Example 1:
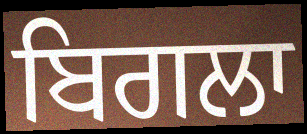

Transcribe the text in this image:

ਬਿਗਲਾ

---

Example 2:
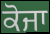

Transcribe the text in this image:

ਕੋਜਾ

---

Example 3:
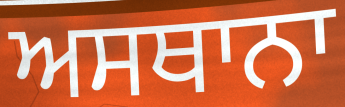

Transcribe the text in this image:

ਅਸਥਾਨਾ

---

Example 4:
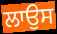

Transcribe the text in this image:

ਲਾਉਸ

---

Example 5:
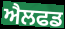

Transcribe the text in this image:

ਐਲਫਡ